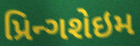
પ્રિન્ગશેઇમ